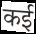
कई